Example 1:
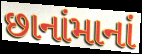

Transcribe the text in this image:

છાનાંમાનાં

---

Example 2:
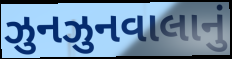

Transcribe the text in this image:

ઝુનઝુનવાલાનું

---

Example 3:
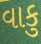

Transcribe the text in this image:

વાકુ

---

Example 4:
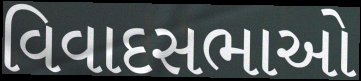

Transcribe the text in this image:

વિવાદસભાઓ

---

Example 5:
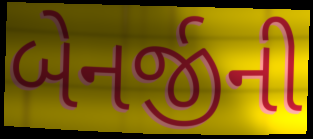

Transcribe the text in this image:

બેનર્જીની